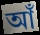
আঁ